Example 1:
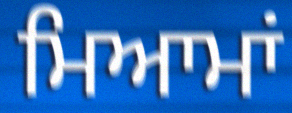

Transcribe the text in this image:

ਮਿਆਮਾਂ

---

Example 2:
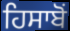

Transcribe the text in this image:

ਹਿਸਾਬੋਂ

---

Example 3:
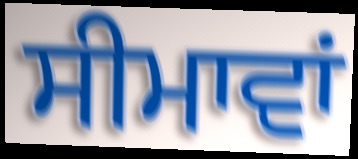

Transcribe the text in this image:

ਸੀਮਾਵਾਂ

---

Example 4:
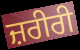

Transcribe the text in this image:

ਜ਼ਰੀਰੀ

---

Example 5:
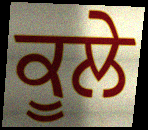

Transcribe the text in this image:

ਕੂਲੇ